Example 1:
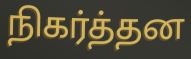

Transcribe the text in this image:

நிகர்த்தன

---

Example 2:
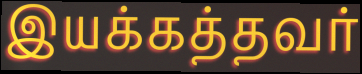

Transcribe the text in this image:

இயக்கத்தவர்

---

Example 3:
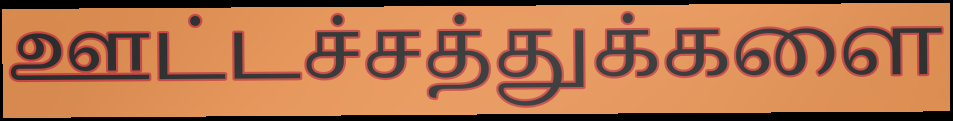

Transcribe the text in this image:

ஊட்டச்சத்துக்களை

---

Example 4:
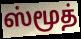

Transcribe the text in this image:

ஸ்மூத்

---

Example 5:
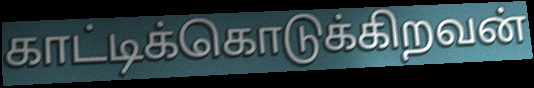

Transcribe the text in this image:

காட்டிக்கொடுக்கிறவன்